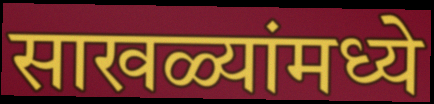
साखळ्यांमध्ये